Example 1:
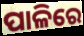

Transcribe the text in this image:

ପାଳିରେ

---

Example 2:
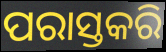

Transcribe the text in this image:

ପରାସ୍ତକରି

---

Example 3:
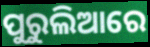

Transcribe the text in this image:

ପୁରୁଲିଆରେ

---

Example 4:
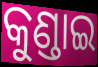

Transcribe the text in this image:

କୁଣ୍ଡାଇ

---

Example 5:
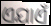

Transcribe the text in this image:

ଏଯାଏଁ